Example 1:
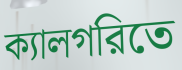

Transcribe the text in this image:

ক্যালগরিতে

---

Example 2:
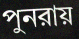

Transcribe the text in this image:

পুনরায়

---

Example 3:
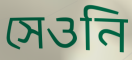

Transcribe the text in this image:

সেওনি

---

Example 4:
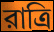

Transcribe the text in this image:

রাত্রি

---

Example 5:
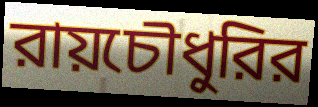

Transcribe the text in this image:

রায়চৌধুরির